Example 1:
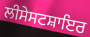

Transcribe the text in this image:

ਲੀਸੇਸਟਸ਼ਾਇਰ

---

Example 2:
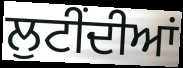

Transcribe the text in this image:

ਲੁਟੀਂਦੀਆਂ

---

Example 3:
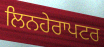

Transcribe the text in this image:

ਲਿਨਹੇਰਾਪਟਰ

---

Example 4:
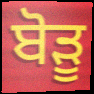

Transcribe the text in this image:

ਬੋੜੂ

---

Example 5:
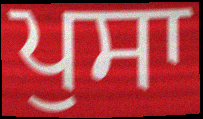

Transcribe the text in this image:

ਪੁਸਾ